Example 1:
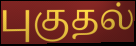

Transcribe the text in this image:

புகுதல்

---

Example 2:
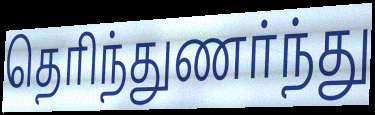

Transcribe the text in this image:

தெரிந்துணர்ந்து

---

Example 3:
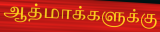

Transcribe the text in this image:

ஆத்மாக்களுக்கு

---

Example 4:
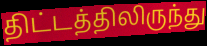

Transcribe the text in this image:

திட்டத்திலிருந்து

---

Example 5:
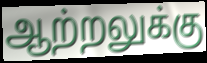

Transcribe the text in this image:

ஆற்றலுக்கு